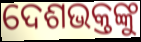
ଦେଶଭକ୍ତଙ୍କୁ